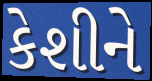
કેશીને